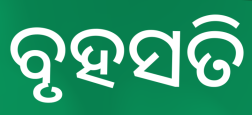
ବୃହସତି